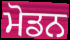
ਮੋਡਨ